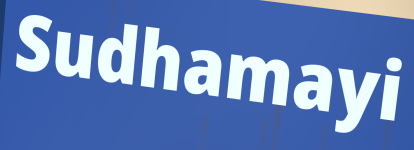
Sudhamayi